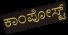
ಕಾಂಪೋಸ್ಟ್